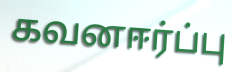
கவனஈர்ப்பு